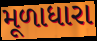
મૂળાધારા